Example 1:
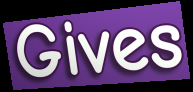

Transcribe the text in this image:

Gives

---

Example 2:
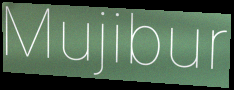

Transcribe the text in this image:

Mujibur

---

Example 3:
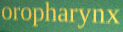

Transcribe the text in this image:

oropharynx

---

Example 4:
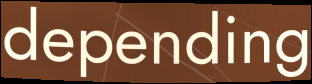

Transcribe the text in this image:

depending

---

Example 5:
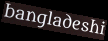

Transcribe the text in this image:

bangladeshi